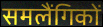
समलैंगिकों